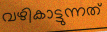
വഴികാട്ടുന്നത്